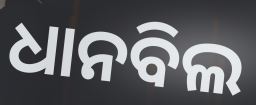
ଧାନବିଲ